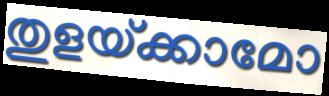
തുളയ്‌ക്കാമോ